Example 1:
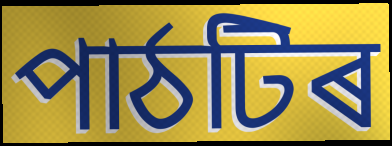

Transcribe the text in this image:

পাঠটিৰ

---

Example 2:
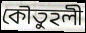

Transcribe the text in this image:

কৌতুহলী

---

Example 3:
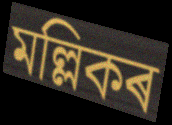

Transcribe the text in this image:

মল্লিকৰ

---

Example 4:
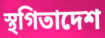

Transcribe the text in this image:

স্থগিতাদেশ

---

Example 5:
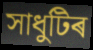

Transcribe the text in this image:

সাধুটিৰ